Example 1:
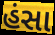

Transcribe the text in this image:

હંસા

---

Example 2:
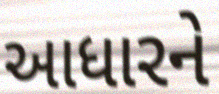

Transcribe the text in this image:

આધારને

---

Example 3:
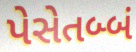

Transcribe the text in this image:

પેસેતબ્બં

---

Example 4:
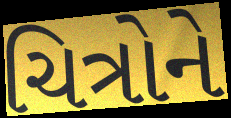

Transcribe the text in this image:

ચિત્રોને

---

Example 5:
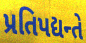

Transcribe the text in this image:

પ્રતિપદ્યન્તે